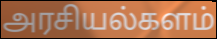
அரசியல்களம்